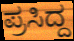
ಪ್ರಸಿದ್ದ